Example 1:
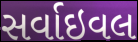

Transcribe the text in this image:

સર્વાઇવલ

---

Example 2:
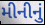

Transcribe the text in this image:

મીનીનું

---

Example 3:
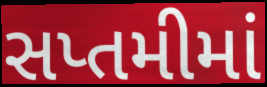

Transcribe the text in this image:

સપ્તમીમાં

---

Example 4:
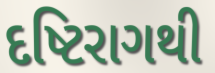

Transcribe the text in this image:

દષ્ટિરાગથી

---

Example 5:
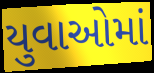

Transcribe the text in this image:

યુવાઓમાં